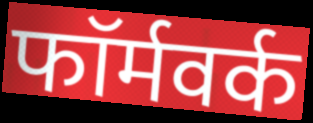
फॉर्मवर्क